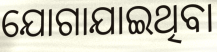
ଯୋଗାଯାଇଥିବା